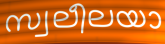
സ്വലീലയാ